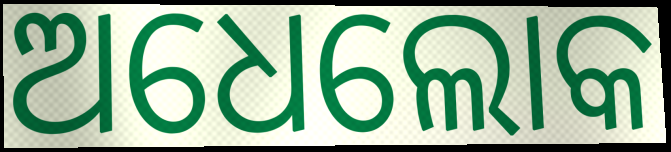
ଅଧେଲୋକ